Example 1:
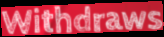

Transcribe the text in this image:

Withdraws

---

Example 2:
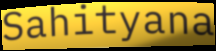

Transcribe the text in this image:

Sahityana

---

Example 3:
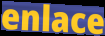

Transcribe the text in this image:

enlace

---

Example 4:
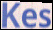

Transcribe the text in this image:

Kes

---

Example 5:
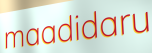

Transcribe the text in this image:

maadidaru